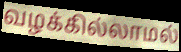
வழக்கில்லாமல்